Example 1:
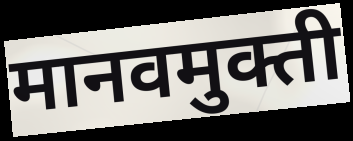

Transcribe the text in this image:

मानवमुक्ती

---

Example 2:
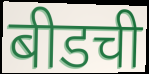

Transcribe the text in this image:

बीडची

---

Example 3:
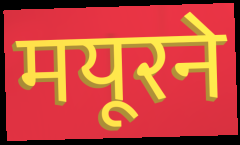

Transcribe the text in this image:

मयूरने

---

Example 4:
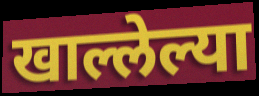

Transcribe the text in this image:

खाल्लेल्या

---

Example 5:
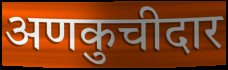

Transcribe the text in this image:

अणकुचीदार